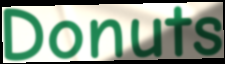
Donuts